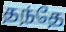
தந்தே